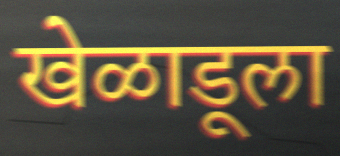
खेळाडूला